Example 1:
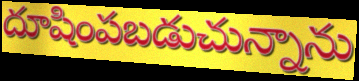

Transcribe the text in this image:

దూషింపబడుచున్నాను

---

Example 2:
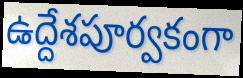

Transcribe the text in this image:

ఉద్దేశపూర్వకంగా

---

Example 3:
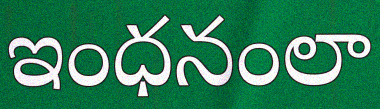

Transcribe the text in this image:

ఇంధనంలా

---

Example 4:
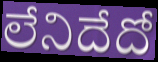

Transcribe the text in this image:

లేనిదేదో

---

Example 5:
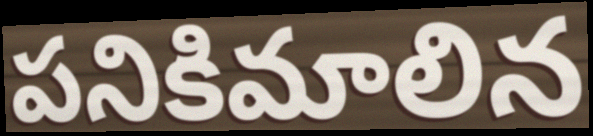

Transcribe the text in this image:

పనికిమాలిన